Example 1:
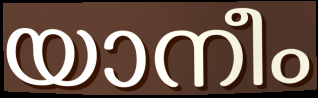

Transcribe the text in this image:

യാനീം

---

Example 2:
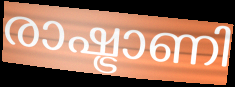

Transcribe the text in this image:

രാഷ്ട്രാണി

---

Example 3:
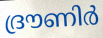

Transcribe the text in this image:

ദ്രൗണിർ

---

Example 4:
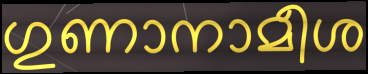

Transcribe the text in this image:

ഗുണാനാമീശ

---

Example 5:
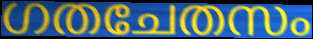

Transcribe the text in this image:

ഗതചേതസം